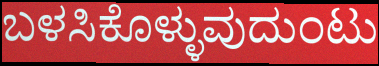
ಬಳಸಿಕೊಳ್ಳುವುದುಂಟು